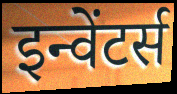
इन्वेंटर्स